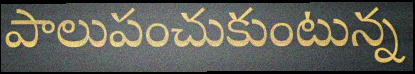
పాలుపంచుకుంటున్న